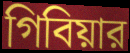
গিবিয়ার